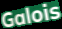
Galois